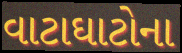
વાટાઘાટોના